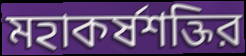
মহাকর্ষশক্তির